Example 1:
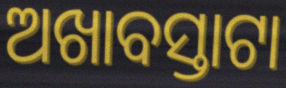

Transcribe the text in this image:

ଅଖାବସ୍ତାଟା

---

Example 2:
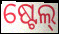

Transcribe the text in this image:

ଷ୍ଟେଲ୍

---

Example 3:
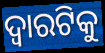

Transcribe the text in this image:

ଦ୍ଵାରଟିକୁ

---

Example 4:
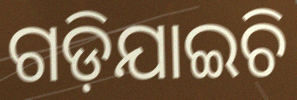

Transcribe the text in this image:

ଗଡ଼ିଯାଇଚି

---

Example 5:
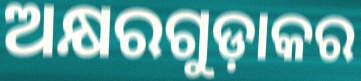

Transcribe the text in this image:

ଅକ୍ଷରଗୁଡ଼ାକର